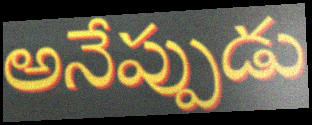
అనేప్పుడు